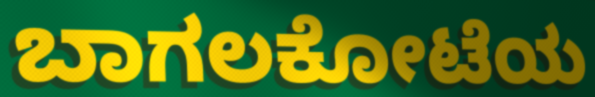
ಬಾಗಲಕೋಟೆಯ